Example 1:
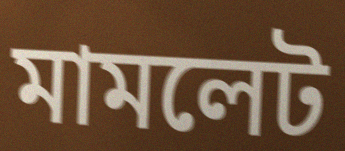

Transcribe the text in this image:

মামলেট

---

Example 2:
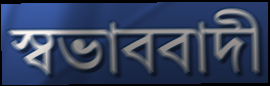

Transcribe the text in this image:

স্বভাববাদী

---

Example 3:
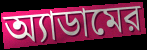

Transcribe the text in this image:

অ্যাডামের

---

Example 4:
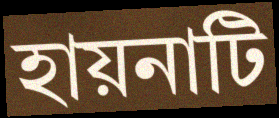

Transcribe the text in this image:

হায়নাটি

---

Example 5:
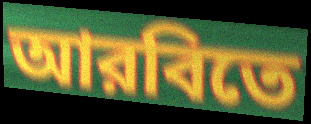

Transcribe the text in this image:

আরবিতে